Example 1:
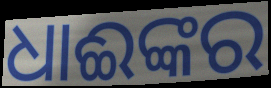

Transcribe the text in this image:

ଧାଈଙ୍କର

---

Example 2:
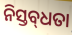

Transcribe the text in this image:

ନିସ୍ତବ୍‌ଧତା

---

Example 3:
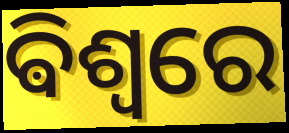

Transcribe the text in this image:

ଵିଶ୍ଵରେ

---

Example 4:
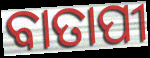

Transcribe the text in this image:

ବାତାପୀ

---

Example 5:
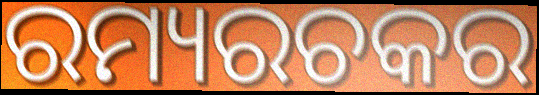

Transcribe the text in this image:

ରମ୍ୟରଚକର